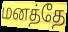
மனத்தே